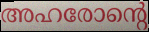
അഹരോന്റെ